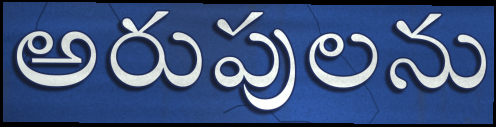
అరుపులను